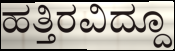
ಹತ್ತಿರವಿದ್ದೂ